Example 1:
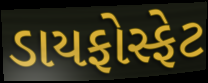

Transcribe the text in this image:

ડાયફોસ્ફેટ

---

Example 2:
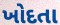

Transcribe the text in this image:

ખોદતા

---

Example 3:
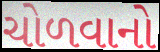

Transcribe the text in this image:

ચોળવાનો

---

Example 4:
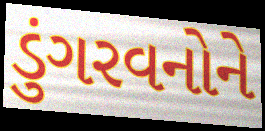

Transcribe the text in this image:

ડુંગરવનોને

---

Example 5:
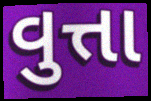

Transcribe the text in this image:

વુત્તા